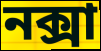
নক্সা